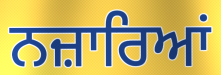
ਨਜ਼ਾਰਿਆਂ